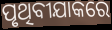
ପୃଥିବୀଯାକରେ